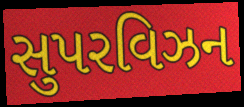
સુપરવિઝન